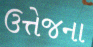
ઉત્તેજના